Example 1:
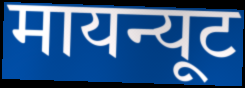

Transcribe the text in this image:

मायन्यूट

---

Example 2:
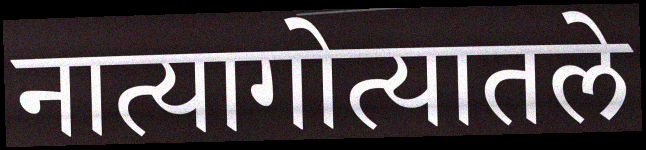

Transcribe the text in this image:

नात्यागोत्यातले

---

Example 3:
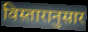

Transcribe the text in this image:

विस्तारानुसार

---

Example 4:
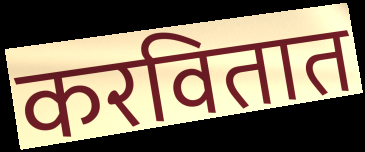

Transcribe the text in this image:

करवितात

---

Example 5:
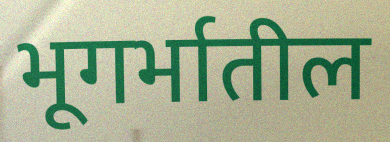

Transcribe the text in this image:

भूगर्भातील